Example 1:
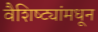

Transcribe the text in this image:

वैशिष्ट्यांमधून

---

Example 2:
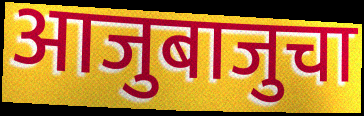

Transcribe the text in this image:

आजुबाजुचा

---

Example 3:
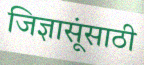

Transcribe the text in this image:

जिज्ञासूंसाठी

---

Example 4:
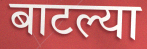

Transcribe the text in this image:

बाटल्या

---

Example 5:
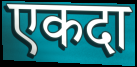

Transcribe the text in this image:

एकदा